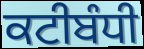
ਕਟੀਬੰਧੀ